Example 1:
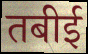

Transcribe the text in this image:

तबीई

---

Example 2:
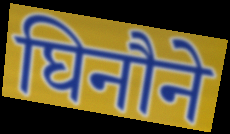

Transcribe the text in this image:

घिनौने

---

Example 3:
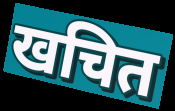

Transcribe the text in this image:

खचित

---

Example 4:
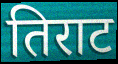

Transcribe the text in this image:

तिराट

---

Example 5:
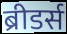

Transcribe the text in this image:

ब्रीडर्स